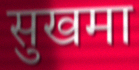
सुखमा